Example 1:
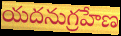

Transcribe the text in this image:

యదనుగ్రహేణ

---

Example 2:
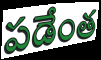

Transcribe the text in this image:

పడేంత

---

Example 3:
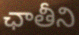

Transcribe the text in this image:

ఛాతీని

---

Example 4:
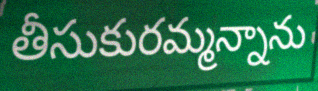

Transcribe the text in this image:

తీసుకురమ్మన్నాను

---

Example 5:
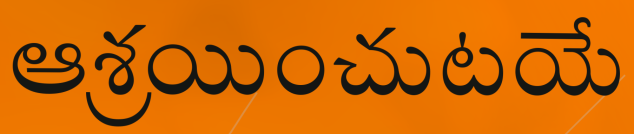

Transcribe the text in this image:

ఆశ్రయించుటయే